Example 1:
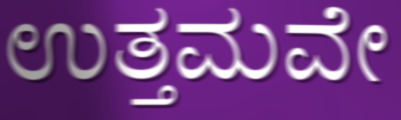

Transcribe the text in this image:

ಉತ್ತಮವೇ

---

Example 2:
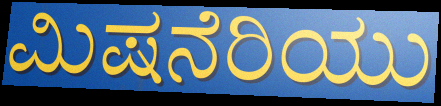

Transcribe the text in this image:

ಮಿಷನೆರಿಯು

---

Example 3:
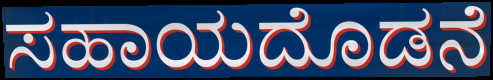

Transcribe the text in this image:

ಸಹಾಯದೊಡನೆ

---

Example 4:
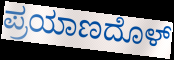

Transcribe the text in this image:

ಪ್ರಯಾಣದೊಳ್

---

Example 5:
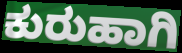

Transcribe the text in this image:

ಕುರುಹಾಗಿ